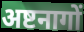
अष्टनागों